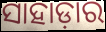
ସାହାଡ଼ାର